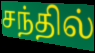
சந்தில்